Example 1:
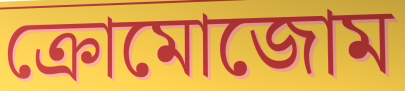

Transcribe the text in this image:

ক্রোমোজোম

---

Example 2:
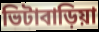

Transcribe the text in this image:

ভিটাবাড়িয়া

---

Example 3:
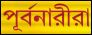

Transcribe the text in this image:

পূর্বনারীরা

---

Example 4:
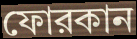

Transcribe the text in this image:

ফোরকান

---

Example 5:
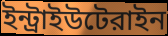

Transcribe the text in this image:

ইন্ট্রাইউটেরাইন